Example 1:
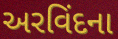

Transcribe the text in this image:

અરવિંદના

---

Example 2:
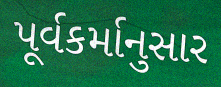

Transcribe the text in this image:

પૂર્વકર્માનુસાર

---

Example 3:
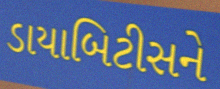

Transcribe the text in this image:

ડાયાબિટીસને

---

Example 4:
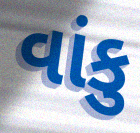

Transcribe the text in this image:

વાંકુ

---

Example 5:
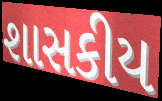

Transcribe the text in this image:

શાસકીય